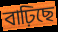
বাঢ়িছে